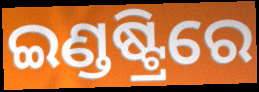
ଇଣ୍ଡଷ୍ଟ୍ରିରେ